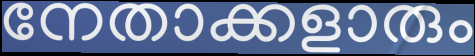
നേതാക്കളാരും